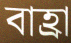
বাহ্রা